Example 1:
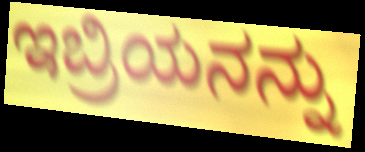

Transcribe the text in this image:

ಇಬ್ರಿಯನನ್ನು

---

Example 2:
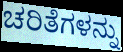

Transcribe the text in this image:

ಚರಿತೆಗಳನ್ನು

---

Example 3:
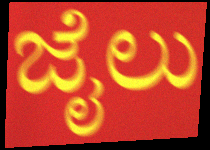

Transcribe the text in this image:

ಜೈಲು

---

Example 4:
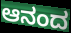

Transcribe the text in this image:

ಆನಂದ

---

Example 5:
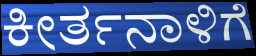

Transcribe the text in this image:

ಕೀರ್ತನಾಳಿಗೆ